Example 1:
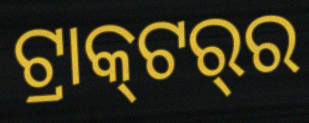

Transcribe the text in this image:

ଟ୍ରାକ୍‍ଟର୍‍ର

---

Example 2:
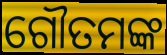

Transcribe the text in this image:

ଗୌତମଙ୍କ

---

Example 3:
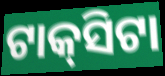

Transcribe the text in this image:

ଟାକ୍‌ସିଟା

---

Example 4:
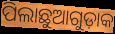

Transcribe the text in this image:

ପିଲାଛୁଆଗୁଡ଼ାକ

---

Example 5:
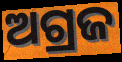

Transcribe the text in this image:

ଅଗ୍ରଜ